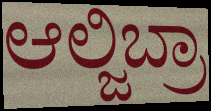
ಆಲ್ಜಿಬ್ರಾ